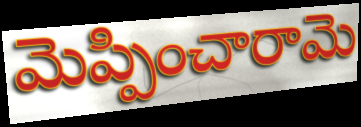
మెప్పించారామె